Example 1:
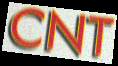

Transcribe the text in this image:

CNT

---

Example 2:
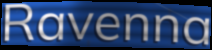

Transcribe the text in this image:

Ravenna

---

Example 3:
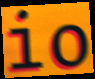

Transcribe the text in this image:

io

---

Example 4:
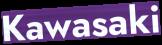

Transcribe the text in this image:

Kawasaki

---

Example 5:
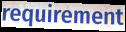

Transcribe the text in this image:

requirement